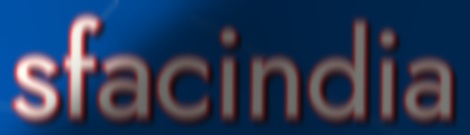
sfacindia